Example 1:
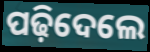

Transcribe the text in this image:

ପଢ଼ିଦେଲେ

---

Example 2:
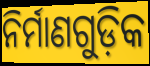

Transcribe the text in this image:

ନିର୍ମାଣଗୁଡ଼ିକ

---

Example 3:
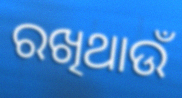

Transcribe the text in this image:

ରଖିଥାଉଁ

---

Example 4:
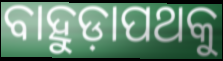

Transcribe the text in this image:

ବାହୁଡ଼ାପଥକୁ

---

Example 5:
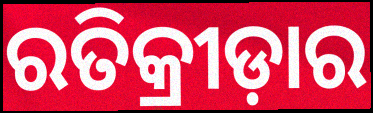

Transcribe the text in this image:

ରତିକ୍ରୀଡ଼ାର